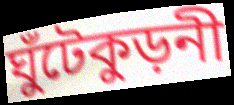
ঘুঁটেকুড়নী